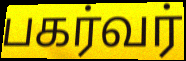
பகர்வர்